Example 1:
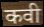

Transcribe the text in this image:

कवी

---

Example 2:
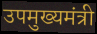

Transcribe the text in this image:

उपमुख्यमंत्री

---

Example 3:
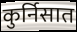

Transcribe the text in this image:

कुर्निसात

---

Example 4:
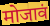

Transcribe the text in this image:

मोजावं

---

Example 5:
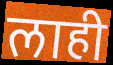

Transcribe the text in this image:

लाही